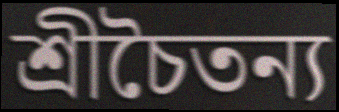
শ্রীচৈতন্য